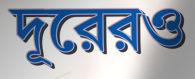
দূরেরও